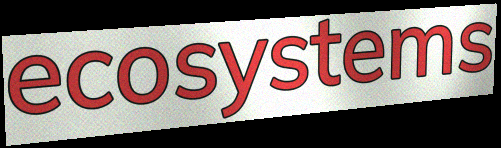
ecosystems